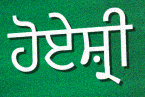
ਹੋਏਸ਼੍ਰੀ